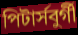
পিটার্সবুর্গী